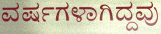
ವರ್ಷಗಳಾಗಿದ್ದವು